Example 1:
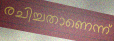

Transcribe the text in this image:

രചിച്ചതാണെന്ന്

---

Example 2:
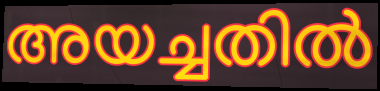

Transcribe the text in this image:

അയച്ചതിൽ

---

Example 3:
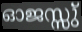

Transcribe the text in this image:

ഓജസ്സു്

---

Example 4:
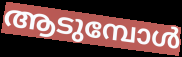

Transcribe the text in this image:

ആടുമ്പോൾ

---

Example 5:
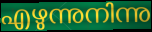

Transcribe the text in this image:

എഴുന്നുനിന്നു